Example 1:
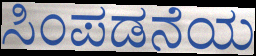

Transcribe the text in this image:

ಸಿಂಪಡನೆಯ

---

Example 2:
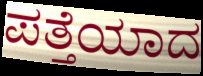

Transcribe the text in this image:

ಪತ್ತೆಯಾದ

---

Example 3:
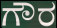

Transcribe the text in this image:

ಗೌರ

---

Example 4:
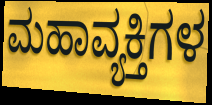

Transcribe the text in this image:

ಮಹಾವ್ಯಕ್ತಿಗಳ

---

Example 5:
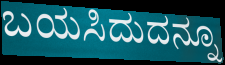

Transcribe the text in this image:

ಬಯಸಿದುದನ್ನೂ